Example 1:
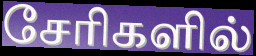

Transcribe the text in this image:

சேரிகளில்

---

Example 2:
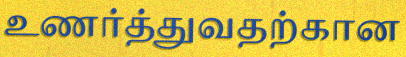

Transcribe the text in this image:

உணர்த்துவதற்கான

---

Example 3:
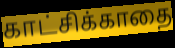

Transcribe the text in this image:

காட்சிக்காதை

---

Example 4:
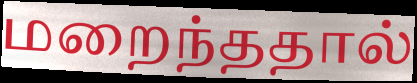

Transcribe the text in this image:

மறைந்ததால்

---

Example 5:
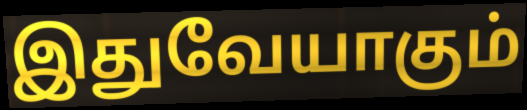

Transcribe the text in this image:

இதுவேயாகும்